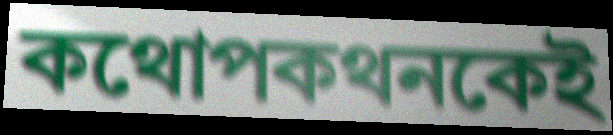
কথোপকথনকেই